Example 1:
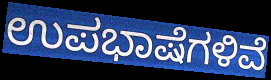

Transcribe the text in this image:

ಉಪಭಾಷೆಗಳಿವೆ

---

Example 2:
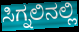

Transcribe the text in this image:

ಸಿಗ್ನಲಿನಲ್ಲಿ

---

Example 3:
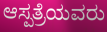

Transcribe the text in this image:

ಆಸ್ಪತ್ರೆಯವರು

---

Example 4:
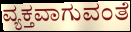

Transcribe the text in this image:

ವ್ಯಕ್ತವಾಗುವಂತೆ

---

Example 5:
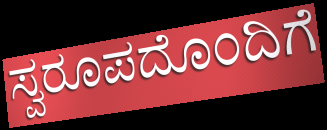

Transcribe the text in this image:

ಸ್ವರೂಪದೊಂದಿಗೆ